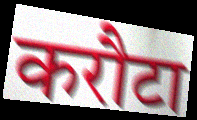
करौटा